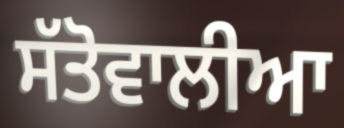
ਸੱਤੋਵਾਲੀਆ